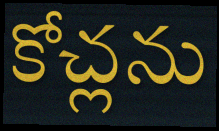
కోచ్లను